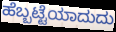
ಹೆಬ್ಬಟ್ಟೆಯಾದುದು